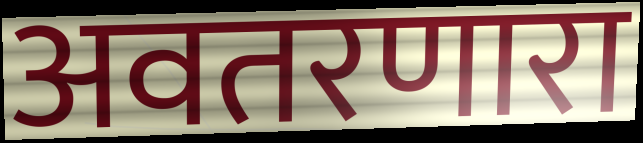
अवतरणारा